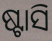
ଷ୍ଟାସି